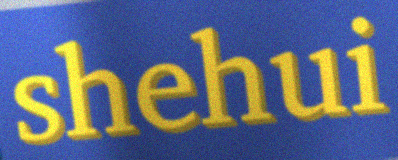
shehui